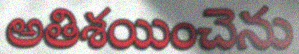
అతిశయించెను